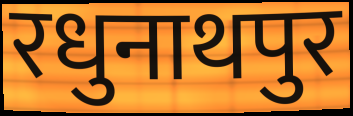
रधुनाथपुर